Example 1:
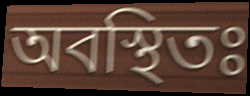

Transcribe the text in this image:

অবস্থিতঃ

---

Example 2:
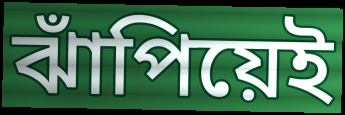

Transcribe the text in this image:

ঝাঁপিয়েই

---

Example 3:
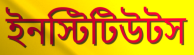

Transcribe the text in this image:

ইনস্টিটিউটস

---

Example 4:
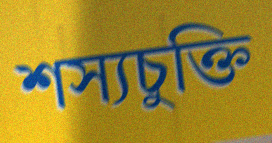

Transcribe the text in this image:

শস্যচুক্তি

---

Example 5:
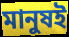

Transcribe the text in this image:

মানুষই